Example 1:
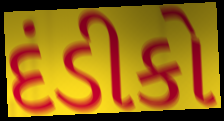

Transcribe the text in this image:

દંડીકો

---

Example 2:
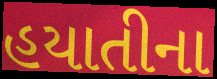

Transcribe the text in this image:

હયાતીના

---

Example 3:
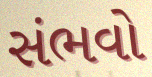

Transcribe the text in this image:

સંભવો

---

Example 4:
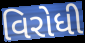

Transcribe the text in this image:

વિરોધી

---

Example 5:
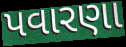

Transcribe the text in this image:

પવારણા